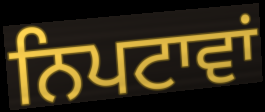
ਨਿਪਟਾਵਾਂ